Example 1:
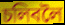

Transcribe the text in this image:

চলিবলৈ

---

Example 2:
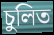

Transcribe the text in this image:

চুলিত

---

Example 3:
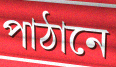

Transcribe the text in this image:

পাঠানে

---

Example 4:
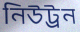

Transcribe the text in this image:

নিউট্ৰন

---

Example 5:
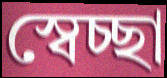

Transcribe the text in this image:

স্বেচ্ছা